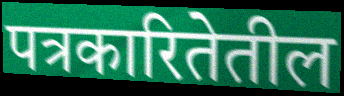
पत्रकारितेतील